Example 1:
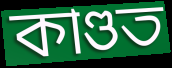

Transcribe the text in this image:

কাণ্ডত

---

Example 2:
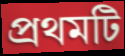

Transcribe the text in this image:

প্ৰথমটি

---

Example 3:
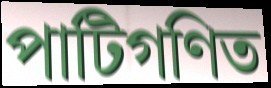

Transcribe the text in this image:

পাটিগণিত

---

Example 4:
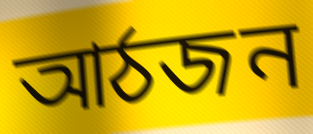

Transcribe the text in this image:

আঠজন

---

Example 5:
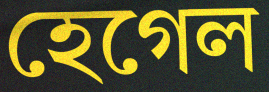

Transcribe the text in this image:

হেগেল